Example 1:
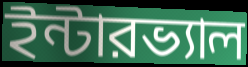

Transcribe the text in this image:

ইন্টারভ্যাল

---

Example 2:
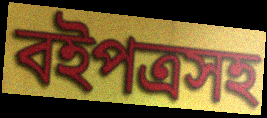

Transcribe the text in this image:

বইপত্রসহ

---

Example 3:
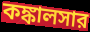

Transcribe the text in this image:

কঙ্কালসার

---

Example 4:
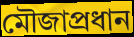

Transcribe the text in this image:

মৌজাপ্রধান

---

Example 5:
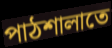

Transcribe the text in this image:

পাঠশালাতে